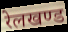
रेलखण्ड